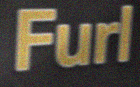
Furl